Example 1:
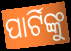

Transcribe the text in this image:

ପାର୍ଟିଙ୍କୁ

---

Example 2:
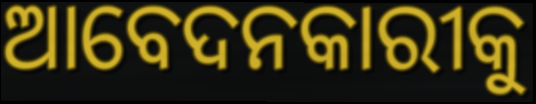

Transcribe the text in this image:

ଆବେଦନକାରୀକୁ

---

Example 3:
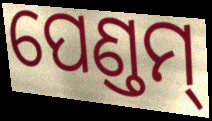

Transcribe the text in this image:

ପେଣ୍ଡମ୍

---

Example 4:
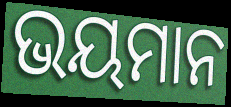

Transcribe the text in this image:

ଭୟମାନ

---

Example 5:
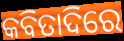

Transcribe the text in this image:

କବିତାଦିରେ